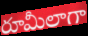
రూమీలాగా